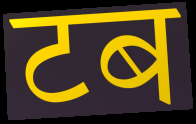
टब